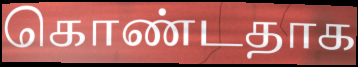
கொண்டதாக